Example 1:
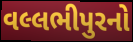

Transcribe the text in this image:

વલ્લભીપુરનો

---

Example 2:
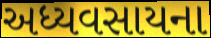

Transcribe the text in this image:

અધ્યવસાયના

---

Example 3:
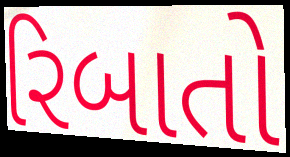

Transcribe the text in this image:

રિબાતો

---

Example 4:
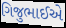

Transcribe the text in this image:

ગિજુભાઈએ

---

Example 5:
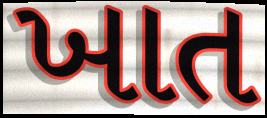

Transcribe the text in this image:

ખાત